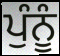
ਪੁੰਨੂੰ